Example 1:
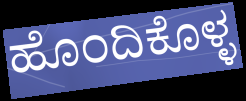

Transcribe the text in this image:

ಹೊಂದಿಕೊಳ್ಳ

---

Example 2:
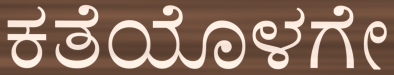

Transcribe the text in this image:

ಕತೆಯೊಳಗೇ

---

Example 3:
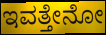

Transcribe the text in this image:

ಇವತ್ತೇನೋ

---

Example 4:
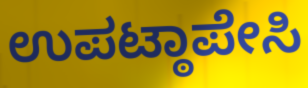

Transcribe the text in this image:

ಉಪಟ್ಠಾಪೇಸಿ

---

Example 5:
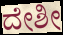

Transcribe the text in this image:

ದೇಶೀ